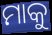
ମାକୁ